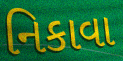
નિકાવા